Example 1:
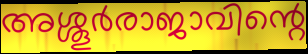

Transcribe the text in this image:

അശ്ശൂർരാജാവിന്റെ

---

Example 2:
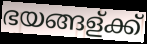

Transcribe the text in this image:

ഭയങ്ങള്ക്ക്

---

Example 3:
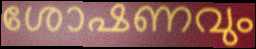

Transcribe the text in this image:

ശോഷണവും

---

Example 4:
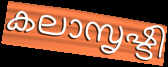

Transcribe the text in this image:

കലാസൃഷ്ടി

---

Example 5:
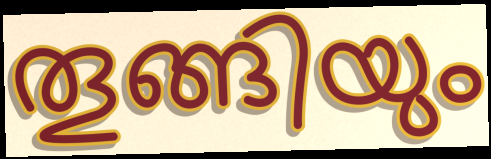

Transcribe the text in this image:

തൂങ്ങിയും